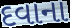
દવાના